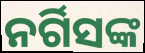
ନର୍ଗିସଙ୍କ